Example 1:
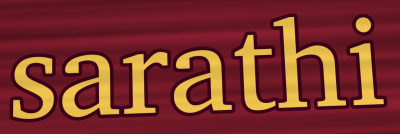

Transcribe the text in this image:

sarathi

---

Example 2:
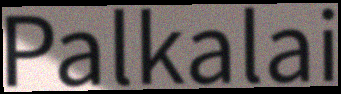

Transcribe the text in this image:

Palkalai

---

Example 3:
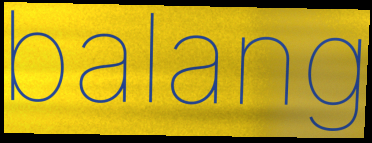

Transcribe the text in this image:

balang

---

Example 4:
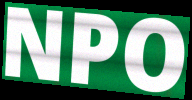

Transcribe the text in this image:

NPO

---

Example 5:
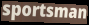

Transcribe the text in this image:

sportsman